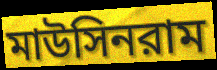
মাউসিনরাম